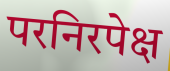
परनिरपेक्ष